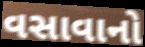
વસાવાનો